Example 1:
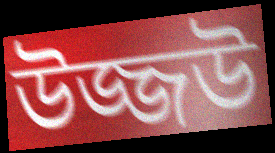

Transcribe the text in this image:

উজ্জউ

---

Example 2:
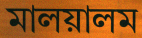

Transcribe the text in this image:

মালয়ালম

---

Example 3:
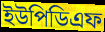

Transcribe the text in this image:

ইউপিডিএফ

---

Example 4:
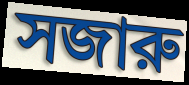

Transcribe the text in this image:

সজারু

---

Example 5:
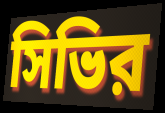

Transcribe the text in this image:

সিভির